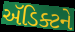
ઍડિક્ટને